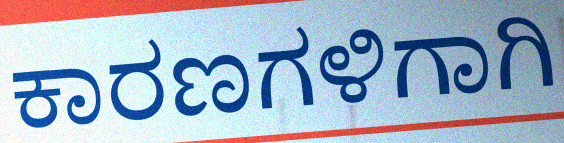
ಕಾರಣಗಳಿಗಾಗಿ